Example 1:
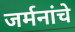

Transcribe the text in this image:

जर्मनांचे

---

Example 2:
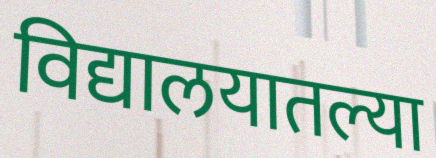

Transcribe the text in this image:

विद्यालयातल्या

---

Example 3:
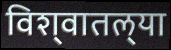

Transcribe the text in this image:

विश्वातल्या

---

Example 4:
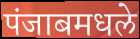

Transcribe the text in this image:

पंजाबमधले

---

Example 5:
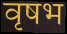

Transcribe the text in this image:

वृषभ